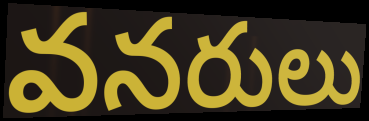
వనరులు